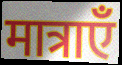
मात्राएँ